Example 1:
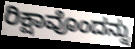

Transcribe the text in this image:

ರಿಕ್ಷಾವೊಂದನ್ನು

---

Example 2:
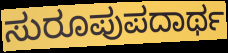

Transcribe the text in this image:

ಸುರೂಪುಪದಾರ್ಥ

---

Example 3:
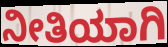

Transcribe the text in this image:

ನೀತಿಯಾಗಿ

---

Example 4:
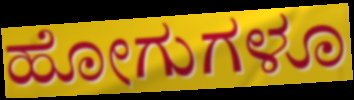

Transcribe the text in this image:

ಹೋಗುಗಳೂ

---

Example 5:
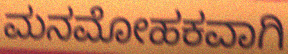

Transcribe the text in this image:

ಮನಮೋಹಕವಾಗಿ